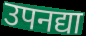
उपनद्या